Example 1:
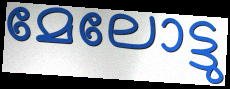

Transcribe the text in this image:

മേലോട്ടു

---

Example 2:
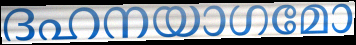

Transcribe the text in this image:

ദഹനയാഗമോ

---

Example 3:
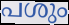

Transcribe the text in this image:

പശും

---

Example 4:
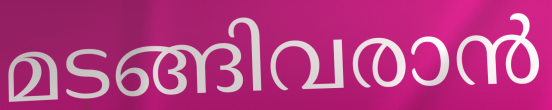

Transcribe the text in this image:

മടങ്ങിവരാൻ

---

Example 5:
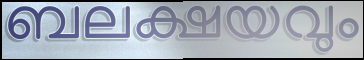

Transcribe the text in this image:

ബലക്ഷയവും